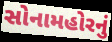
સોનામહોરનું